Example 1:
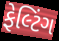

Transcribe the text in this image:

ફેલ્ટિંગ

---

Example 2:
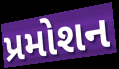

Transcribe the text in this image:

પ્રમોશન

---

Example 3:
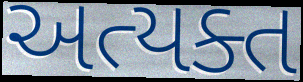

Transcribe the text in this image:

અત્યક્ત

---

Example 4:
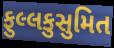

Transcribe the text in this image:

ફુલ્લકુસુમિત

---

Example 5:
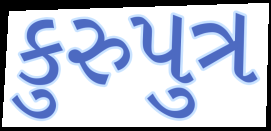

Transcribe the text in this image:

કુરુપુત્ર